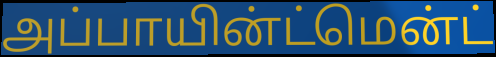
அப்பாயின்ட்மென்ட்